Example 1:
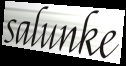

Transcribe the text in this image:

salunke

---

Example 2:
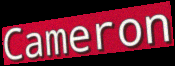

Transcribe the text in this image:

Cameron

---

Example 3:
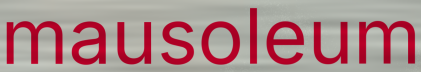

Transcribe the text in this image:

mausoleum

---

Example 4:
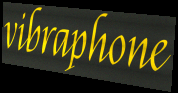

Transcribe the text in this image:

vibraphone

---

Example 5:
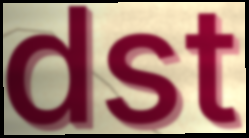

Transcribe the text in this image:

dst